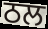
ਠਲ